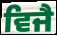
ਵਿਜੈ